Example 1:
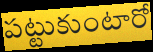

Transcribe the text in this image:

పట్టుకుంటారో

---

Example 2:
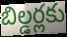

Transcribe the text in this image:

బిల్డర్లకు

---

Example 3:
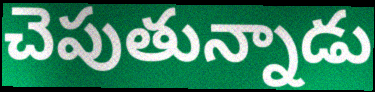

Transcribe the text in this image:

చెపుతున్నాడు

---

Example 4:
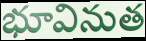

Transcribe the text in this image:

భూవినుత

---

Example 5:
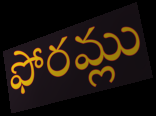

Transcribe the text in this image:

ఫోరమ్లు